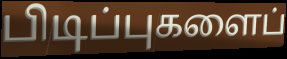
பிடிப்புகளைப்